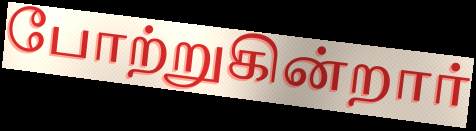
போற்றுகின்றார்